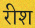
रीश